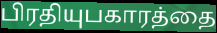
பிரதியுபகாரத்தை